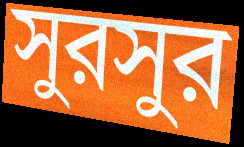
সুরসুর